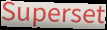
Superset